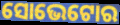
ସୋଭେଟୋର